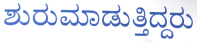
ಶುರುಮಾಡುತ್ತಿದ್ದರು